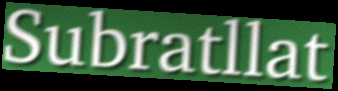
Subratllat